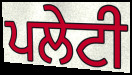
ਪਲੇਟੀ